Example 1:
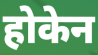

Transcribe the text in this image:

होकेन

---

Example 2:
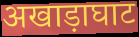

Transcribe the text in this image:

अखाड़ाघाट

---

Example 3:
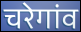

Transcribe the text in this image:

चरेगांव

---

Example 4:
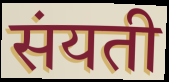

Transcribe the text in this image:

संयती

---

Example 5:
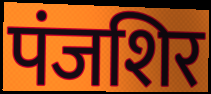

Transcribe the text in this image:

पंजशिर